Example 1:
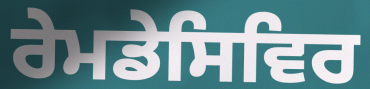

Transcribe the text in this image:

ਰੇਮਡੇਸਿਵਿਰ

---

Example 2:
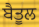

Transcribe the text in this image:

ਬੈਤੂਲ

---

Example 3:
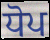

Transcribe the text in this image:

ਧੋਪ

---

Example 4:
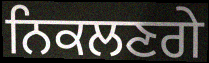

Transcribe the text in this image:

ਨਿਕਲਣਗੇ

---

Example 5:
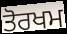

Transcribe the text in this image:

ਤੋਰਖਮ